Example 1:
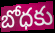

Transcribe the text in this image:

బోధకు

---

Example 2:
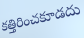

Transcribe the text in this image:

కత్తిరించకూడదు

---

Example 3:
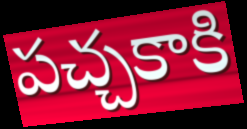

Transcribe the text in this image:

పచ్చకాకి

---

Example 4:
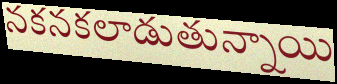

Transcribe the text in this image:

నకనకలాడుతున్నాయి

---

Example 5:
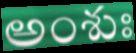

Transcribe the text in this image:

అంశుః